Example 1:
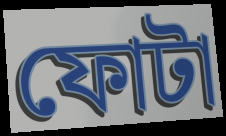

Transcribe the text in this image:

ফোটা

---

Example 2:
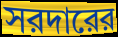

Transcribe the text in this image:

সরদারের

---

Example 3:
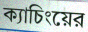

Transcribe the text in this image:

ক্যাচিংয়ের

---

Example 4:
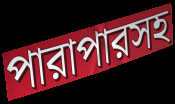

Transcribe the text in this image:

পারাপারসহ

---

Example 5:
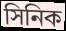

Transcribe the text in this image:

সিনিক